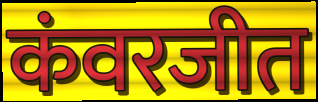
कंवरजीत